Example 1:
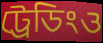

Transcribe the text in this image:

ট্রেডিংও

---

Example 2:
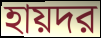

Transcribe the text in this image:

হায়দর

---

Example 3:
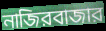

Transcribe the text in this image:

নাজিরবাজার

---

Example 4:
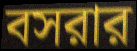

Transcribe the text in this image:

বসরার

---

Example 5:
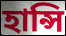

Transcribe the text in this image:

হান্সি